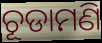
ଚୂଡାମଣି